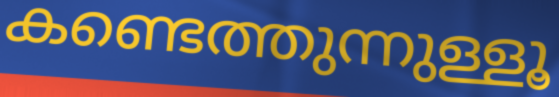
കണ്ടെത്തുന്നുള്ളൂ